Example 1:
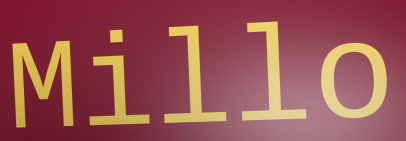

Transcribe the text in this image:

Millo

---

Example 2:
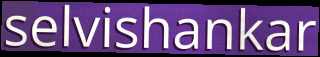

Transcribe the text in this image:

selvishankar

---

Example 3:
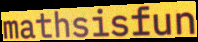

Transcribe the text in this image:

mathsisfun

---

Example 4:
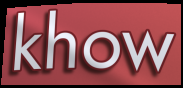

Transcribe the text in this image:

khow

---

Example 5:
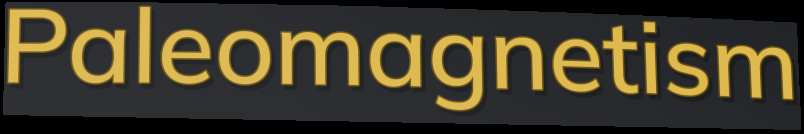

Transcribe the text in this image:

Paleomagnetism